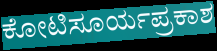
ಕೋಟಿಸೂರ್ಯಪ್ರಕಾಶ